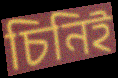
চিনিই